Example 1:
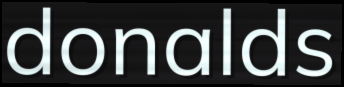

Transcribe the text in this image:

donalds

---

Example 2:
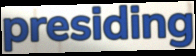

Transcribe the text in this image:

presiding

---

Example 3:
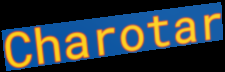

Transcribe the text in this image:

Charotar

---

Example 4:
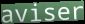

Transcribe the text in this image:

aviser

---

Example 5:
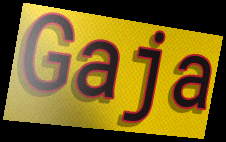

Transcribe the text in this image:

Gaja